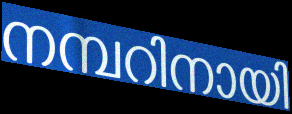
നമ്പറിനായി